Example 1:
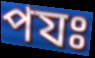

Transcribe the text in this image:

পযঃ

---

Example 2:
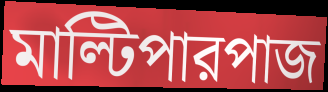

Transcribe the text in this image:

মাল্টিপারপাজ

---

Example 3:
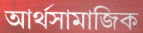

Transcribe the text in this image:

আর্থসামাজিক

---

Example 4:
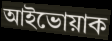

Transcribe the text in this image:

আইভোয়াক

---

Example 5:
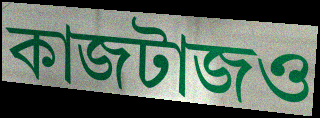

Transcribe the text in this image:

কাজটাজও